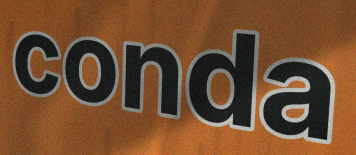
conda